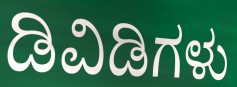
ಡಿವಿಡಿಗಳು